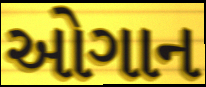
ઓગાન